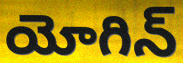
యోగిన్